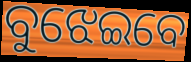
ବୁଝେଇବେ